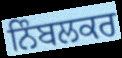
ਨਿੰਬਲਕਰ